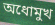
অধোমুখ